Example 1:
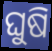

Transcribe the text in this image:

ଘୁଷି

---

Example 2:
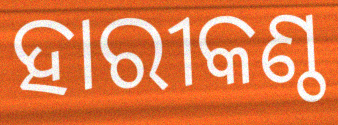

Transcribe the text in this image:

ହାରୀକଣ୍ଠ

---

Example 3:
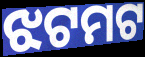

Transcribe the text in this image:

ଝଟମଟ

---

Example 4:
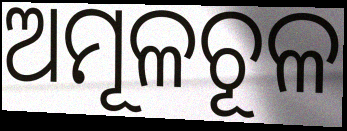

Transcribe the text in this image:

ଅମୂଳଚୂଳ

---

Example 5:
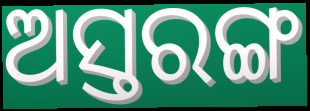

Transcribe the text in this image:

ଅସ୍ତରଙ୍ଗ